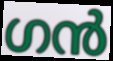
ഗൻ